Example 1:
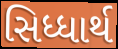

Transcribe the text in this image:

સિધ્ધાર્થ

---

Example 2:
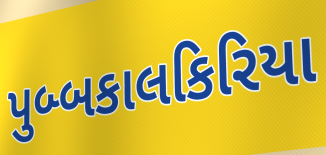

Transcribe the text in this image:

પુબ્બકાલકિરિયા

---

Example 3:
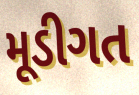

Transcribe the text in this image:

મૂડીગત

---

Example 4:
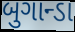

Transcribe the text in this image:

બુગાન્ડા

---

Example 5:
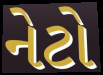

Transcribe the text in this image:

નેટો